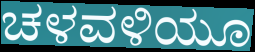
ಚಳವಳಿಯೂ